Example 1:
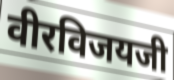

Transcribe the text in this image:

वीरविजयजी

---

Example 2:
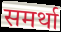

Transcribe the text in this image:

समर्था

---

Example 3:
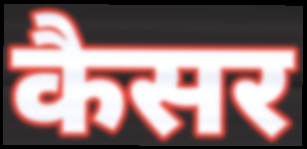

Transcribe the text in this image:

कैसर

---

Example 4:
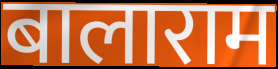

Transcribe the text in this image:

बालाराम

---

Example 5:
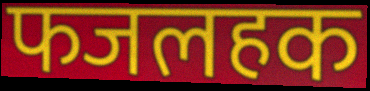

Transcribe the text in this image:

फजलहक